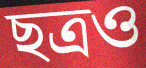
ছত্রও